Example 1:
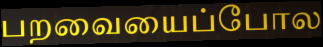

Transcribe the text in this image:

பறவையைப்போல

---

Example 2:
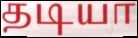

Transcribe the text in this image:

தடியா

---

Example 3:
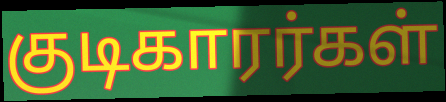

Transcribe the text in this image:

குடிகாரர்கள்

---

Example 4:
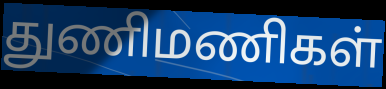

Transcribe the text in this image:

துணிமணிகள்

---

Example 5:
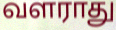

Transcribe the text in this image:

வளராது